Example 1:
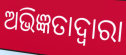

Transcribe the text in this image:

ଅଭିଜ୍ଞତାଦ୍ଵାରା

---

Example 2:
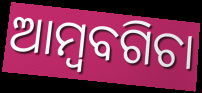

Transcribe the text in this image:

ଆମ୍ବବଗିଚା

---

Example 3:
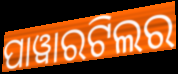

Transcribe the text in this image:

ପାୱାରଟିଲର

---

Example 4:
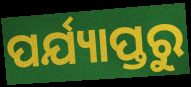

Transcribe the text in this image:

ପର୍ଯ୍ୟାପ୍ତରୁ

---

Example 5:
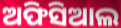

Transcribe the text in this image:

ଅଫିସିଆଲ